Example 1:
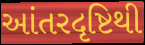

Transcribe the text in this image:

આંતરદૃષ્ટિથી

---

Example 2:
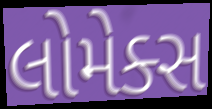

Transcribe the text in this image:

લોમેક્સ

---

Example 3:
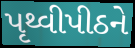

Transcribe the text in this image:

પૃથ્વીપીઠને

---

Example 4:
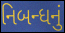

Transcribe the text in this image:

નિબન્ધનું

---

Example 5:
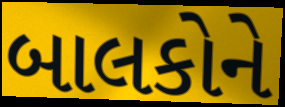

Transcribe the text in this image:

બાલકોને